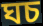
ঘচ